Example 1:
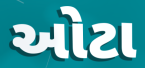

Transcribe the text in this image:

ઓટા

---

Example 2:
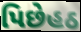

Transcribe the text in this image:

પિછેહઠ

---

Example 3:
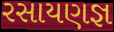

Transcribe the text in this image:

રસાયણજ્ઞ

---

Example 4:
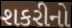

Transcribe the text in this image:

શકરીનો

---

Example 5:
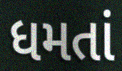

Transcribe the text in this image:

ધમતાં